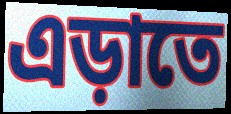
এড়াতে